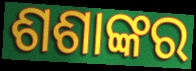
ଶଶାଙ୍କର